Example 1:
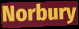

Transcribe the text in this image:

Norbury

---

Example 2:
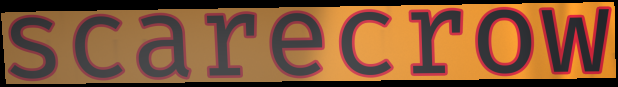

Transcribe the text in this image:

scarecrow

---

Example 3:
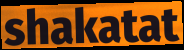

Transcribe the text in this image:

shakatat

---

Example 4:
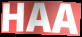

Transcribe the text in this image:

HAA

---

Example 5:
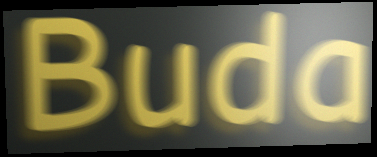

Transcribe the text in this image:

Buda